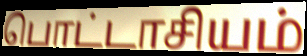
பொட்டாசியம்